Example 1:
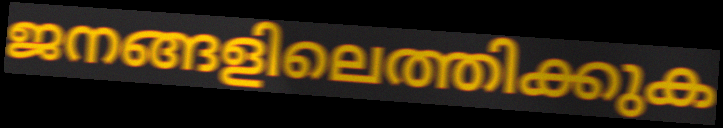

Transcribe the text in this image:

ജനങ്ങളിലെത്തിക്കുക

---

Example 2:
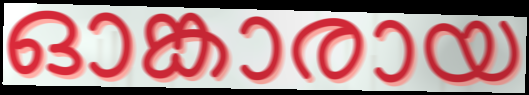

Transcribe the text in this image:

ഓങ്കാരായ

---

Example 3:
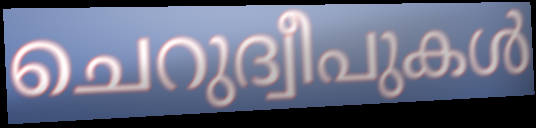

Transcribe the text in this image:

ചെറുദ്വീപുകൾ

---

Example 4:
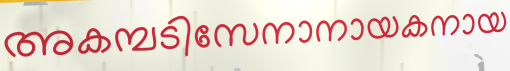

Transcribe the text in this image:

അകമ്പടിസേനാനായകനായ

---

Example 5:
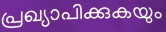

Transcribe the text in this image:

പ്രഖ്യാപിക്കുകയും